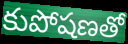
కుపోషణతో